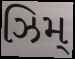
ઝિમ્